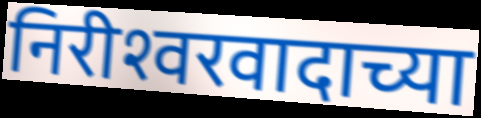
निरीश्वरवादाच्या